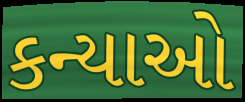
કન્યાઓ